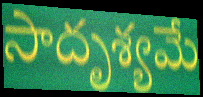
సాదృశ్యమే